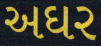
અઘર